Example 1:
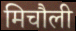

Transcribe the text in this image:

मिचौली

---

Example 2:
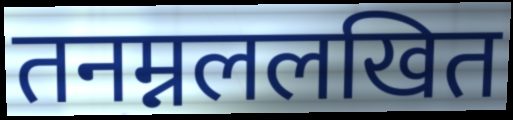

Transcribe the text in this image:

तनम्नललखित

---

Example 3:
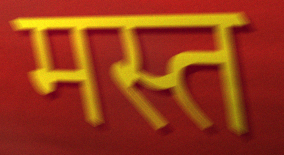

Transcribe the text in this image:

मस्त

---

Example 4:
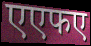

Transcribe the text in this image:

एएफए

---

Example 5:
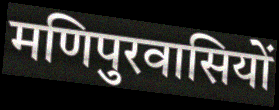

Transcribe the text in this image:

मणिपुरवासियों